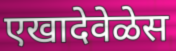
एखादेवेळेस